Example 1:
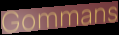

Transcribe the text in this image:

Gommans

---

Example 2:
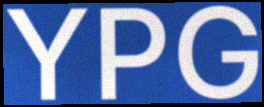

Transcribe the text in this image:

YPG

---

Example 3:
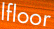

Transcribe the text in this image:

lfloor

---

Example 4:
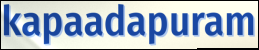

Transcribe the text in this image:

kapaadapuram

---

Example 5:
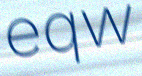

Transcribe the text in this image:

eqw